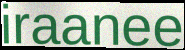
iraanee